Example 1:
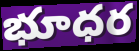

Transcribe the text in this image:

భూధర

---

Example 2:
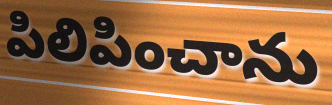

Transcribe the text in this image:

పిలిపించాను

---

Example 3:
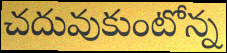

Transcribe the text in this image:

చదువుకుంటోన్న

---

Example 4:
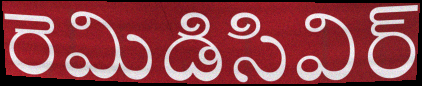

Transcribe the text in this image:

రెమిడిసివిర్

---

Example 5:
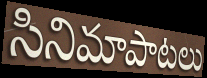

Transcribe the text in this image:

సినిమాపాటలు